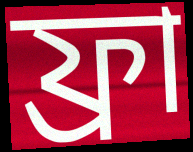
ফ্রা